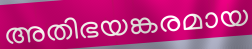
അതിഭയങ്കരമായ